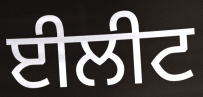
ਈਲੀਟ